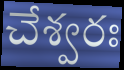
చేశ్వరః